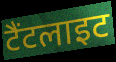
टैंटलाइट